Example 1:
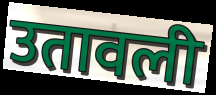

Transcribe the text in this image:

उतावली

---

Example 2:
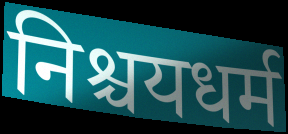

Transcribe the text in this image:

निश्चयधर्म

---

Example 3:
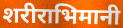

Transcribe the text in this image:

शरीराभिमानी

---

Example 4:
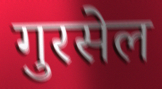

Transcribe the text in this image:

गुरसेल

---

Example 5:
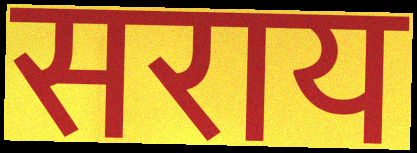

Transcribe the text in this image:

सराय